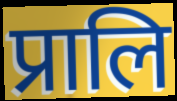
प्रालि